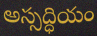
అస్సద్ధియం